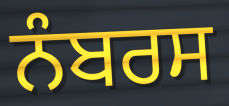
ਨੰਬਰਸ